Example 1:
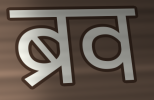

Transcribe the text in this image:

ब्रव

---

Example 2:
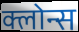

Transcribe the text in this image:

क्लोन्स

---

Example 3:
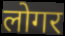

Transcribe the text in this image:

लोगर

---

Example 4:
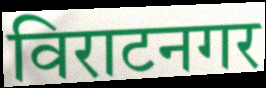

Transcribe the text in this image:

विराटनगर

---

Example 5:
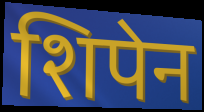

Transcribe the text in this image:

शिपेन